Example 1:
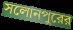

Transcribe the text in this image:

সলোনপুরের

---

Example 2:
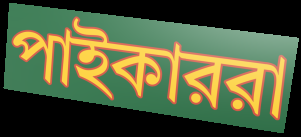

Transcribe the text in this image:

পাইকাররা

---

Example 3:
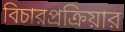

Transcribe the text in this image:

বিচারপ্রক্রিয়ার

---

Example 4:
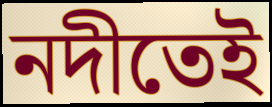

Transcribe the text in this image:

নদীতেই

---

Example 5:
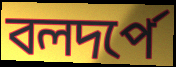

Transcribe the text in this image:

বলদর্পে